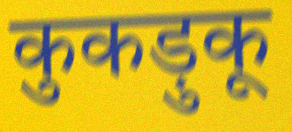
कुकड़ुकू